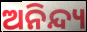
ଅନିନ୍ଦ୍ୟ